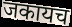
जकायच